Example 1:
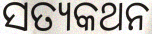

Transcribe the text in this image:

ସତ୍ୟକଥନ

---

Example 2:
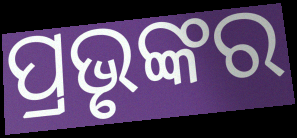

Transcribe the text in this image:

ପ୍ରଭୃଙ୍କର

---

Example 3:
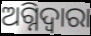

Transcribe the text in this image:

ଅଗ୍ନିଦ୍ଵାରା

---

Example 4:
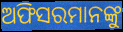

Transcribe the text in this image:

ଅଫିସରମାନଙ୍କୁ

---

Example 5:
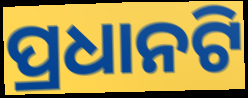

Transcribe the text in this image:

ପ୍ରଧାନଟି